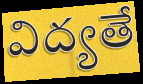
విద్యతే